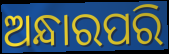
ଅନ୍ଧାରପରି